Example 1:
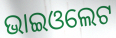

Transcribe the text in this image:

ଭାଇଓଲେଟ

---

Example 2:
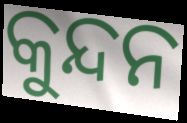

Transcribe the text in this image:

କୁନ୍ଦନ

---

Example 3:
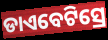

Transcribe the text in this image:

ଡାଏବେଟିସ୍ରେ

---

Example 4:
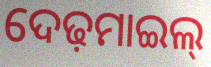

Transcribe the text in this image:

ଦେଢ଼ମାଇଲ୍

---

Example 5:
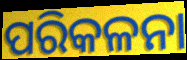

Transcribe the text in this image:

ପରିକଳନା